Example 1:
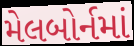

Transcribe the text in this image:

મેલબોર્નમાં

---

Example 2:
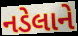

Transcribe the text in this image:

નડેલાને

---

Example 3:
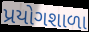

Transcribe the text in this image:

પ્રયોગશાળા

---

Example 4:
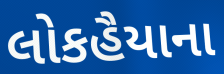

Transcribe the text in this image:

લોકહૈયાના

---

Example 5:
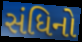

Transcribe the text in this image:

સંધિનો